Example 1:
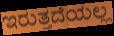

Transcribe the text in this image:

ಇರುತ್ತದೆಯಲ್ಲ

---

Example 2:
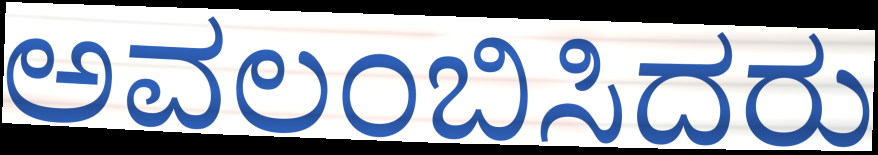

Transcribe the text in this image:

ಅವಲಂಬಿಸಿದರು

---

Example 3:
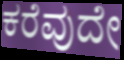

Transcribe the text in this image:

ಕರೆವುದೇ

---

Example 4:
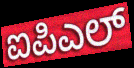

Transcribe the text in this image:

ಐಪಿಎಲ್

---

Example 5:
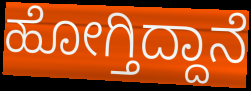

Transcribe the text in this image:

ಹೋಗ್ತಿದ್ದಾನೆ